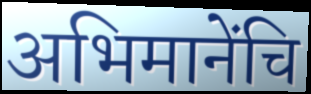
अभिमानेंचि